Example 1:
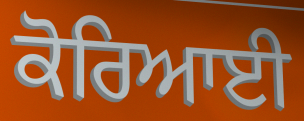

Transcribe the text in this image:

ਕੋਰਿਆਈ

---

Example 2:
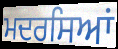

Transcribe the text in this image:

ਮਦਰਸਿਆਂ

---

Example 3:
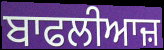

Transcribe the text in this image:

ਬਾਫਲੀਆਜ਼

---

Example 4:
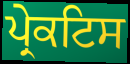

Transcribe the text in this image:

ਪ੍ਰੇਕਟਿਸ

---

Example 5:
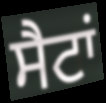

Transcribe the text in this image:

ਸੈਟਾਂ